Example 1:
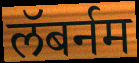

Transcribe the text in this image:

लॅबर्नम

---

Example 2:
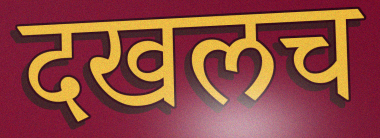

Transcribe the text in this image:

दखलच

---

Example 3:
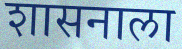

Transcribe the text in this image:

शासनाला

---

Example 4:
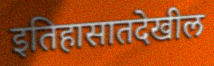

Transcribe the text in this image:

इतिहासातदेखील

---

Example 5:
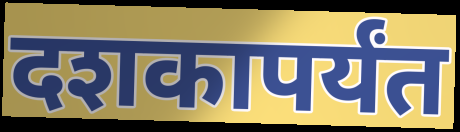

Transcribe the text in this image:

दशकापर्यंत